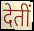
देतीं